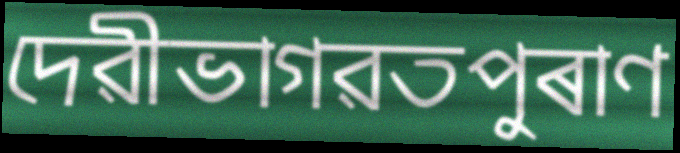
দেৱীভাগৱতপুৰাণ